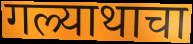
गल्याथाचा